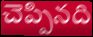
చెప్పినది